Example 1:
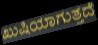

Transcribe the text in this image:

ಖುಷಿಯಾಗುತ್ತದೆ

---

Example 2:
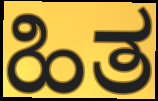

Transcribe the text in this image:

ಹಿತ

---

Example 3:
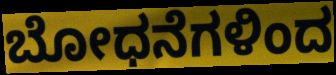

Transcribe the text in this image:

ಬೋಧನೆಗಳಿಂದ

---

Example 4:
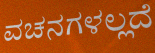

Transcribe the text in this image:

ವಚನಗಳಲ್ಲದೆ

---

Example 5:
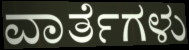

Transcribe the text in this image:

ವಾರ್ತೆಗಳು